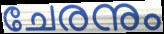
ചേരനും